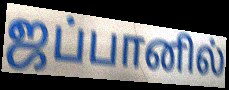
ஜப்பானில்